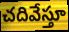
చదివేస్తూ